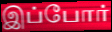
இப்போர்